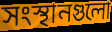
সংস্থানগুলো